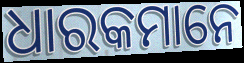
ଧାରକମାନେ